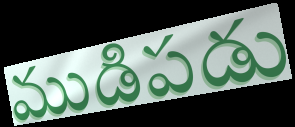
ముడిపడు